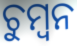
ଚୁମ୍ବନ